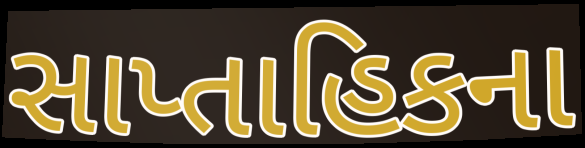
સાપ્તાહિકના